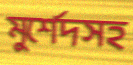
মুর্শেদসহ